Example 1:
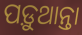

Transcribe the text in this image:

ପଡ଼ୁଥାନ୍ତା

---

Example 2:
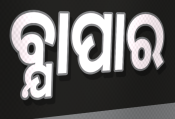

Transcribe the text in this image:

ବ୍ଯାପାର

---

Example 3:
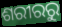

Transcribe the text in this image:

ଶରୀରରୁ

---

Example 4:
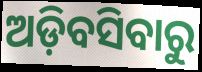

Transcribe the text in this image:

ଅଡ଼ିବସିବାରୁ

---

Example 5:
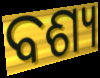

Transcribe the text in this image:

ବଶ୍ୟ